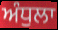
ਅੰਧੁਲਾ